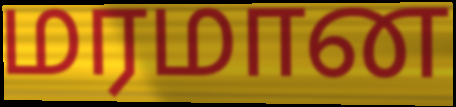
மரமான